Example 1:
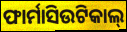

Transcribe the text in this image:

ଫାର୍ମାସିଉଟିକାଲ୍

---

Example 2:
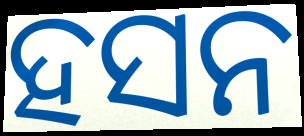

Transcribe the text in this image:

ହସନ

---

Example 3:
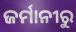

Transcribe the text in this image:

ଜର୍ମାନୀରୁ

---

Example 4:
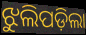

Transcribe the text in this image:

ଝୁଲିପଡ଼ିଲା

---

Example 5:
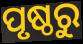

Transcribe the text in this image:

ପୃଷ୍ଠରୁ